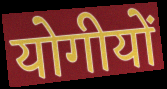
योगीयों